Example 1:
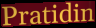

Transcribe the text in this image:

Pratidin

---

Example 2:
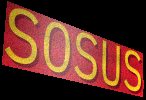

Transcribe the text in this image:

SOSUS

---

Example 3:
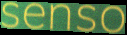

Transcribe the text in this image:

senso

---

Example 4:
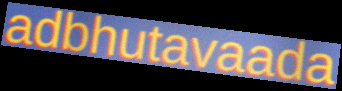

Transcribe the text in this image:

adbhutavaada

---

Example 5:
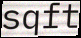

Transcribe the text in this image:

sqft